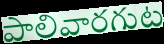
పాలివారగుట